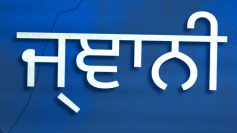
ਜ੍ਞਾਨੀ